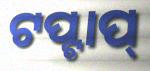
ଟପ୍ଟାପ୍